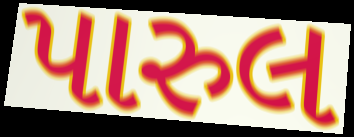
પારુલ